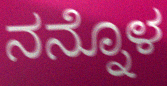
ನನ್ನೊಳ